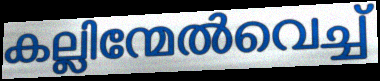
കല്ലിന്മേൽവെച്ച്